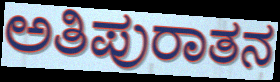
ಅತಿಪುರಾತನ